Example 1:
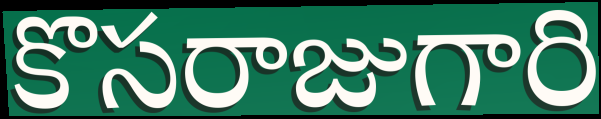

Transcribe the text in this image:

కొసరాజుగారి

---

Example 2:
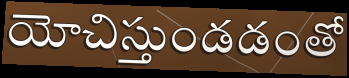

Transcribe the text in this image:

యోచిస్తుండడంతో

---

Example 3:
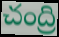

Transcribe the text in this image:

చంద్రి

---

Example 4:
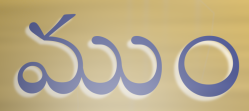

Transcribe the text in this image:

ముం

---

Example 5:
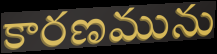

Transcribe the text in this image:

కారణమును